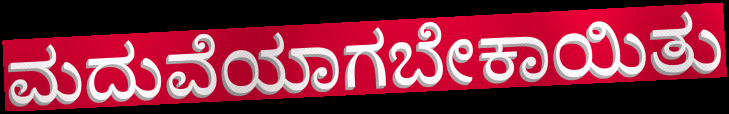
ಮದುವೆಯಾಗಬೇಕಾಯಿತು